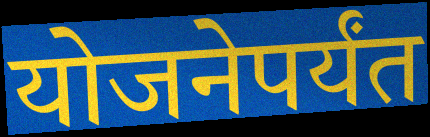
योजनेपर्यंत